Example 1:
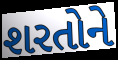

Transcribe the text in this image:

શરતોને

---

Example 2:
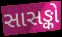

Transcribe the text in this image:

સાસઙ્કો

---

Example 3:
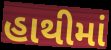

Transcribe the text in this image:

હાથીમાં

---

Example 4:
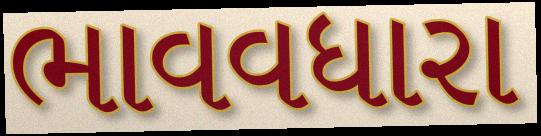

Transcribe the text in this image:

ભાવવધારા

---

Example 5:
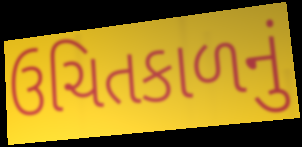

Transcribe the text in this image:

ઉચિતકાળનું